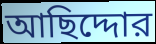
আছিদ্দোর